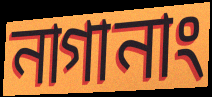
নাগানাং